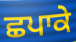
ਛਪਾਕੇ